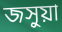
জসুয়া